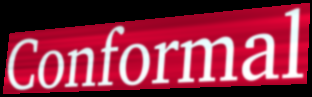
Conformal